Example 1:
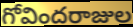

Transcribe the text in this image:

గోవిందరాజుల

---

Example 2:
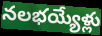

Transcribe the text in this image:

నలభయ్యేళ్లు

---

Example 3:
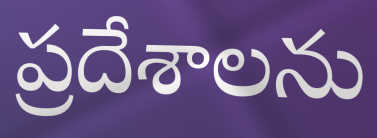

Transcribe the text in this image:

ప్రదేశాలను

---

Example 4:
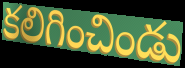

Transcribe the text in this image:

కలిగించిండు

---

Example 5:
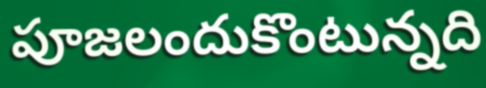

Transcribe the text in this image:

పూజలందుకొంటున్నది